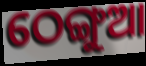
ଠେଙ୍ଗୁଆ